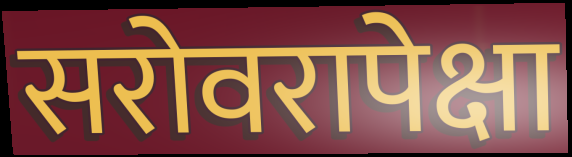
सरोवरापेक्षा